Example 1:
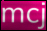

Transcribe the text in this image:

mcj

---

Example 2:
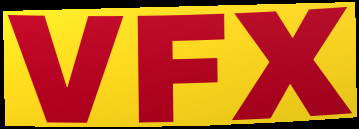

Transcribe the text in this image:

VFX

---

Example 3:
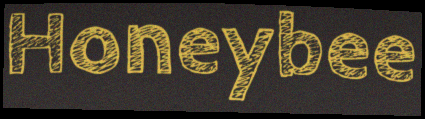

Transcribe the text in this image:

Honeybee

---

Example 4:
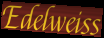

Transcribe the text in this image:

Edelweiss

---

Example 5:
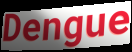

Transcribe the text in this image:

Dengue